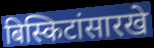
बिस्किटांसारखे